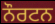
ਨੌਰਟਨ